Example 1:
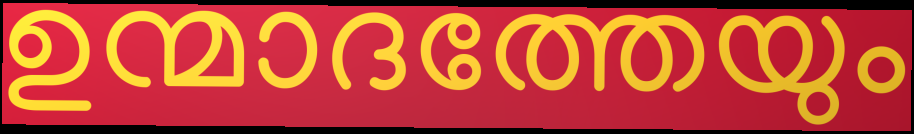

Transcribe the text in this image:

ഉന്മാദത്തേയും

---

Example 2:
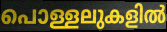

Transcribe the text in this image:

പൊള്ളലുകളിൽ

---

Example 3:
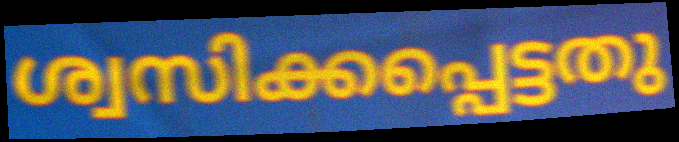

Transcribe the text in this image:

ശ്വസിക്കപ്പെട്ടതു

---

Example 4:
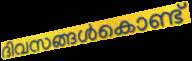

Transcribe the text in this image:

ദിവസങ്ങൾകൊണ്ട്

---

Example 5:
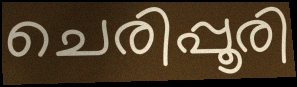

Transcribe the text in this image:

ചെരിപ്പൂരി